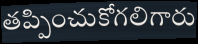
తప్పించుకోగలిగారు